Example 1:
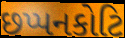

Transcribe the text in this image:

છપ્પનકોટિ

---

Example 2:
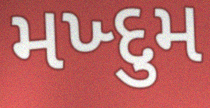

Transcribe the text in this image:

મખ્દુમ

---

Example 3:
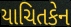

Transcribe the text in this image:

યાચિતકેન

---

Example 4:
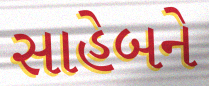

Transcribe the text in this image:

સાહેબને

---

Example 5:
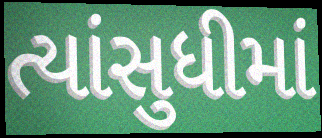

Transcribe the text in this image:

ત્યાંસુધીમાં